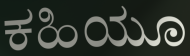
ಕಹಿಯೂ